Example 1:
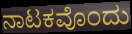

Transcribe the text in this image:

ನಾಟಕವೊಂದು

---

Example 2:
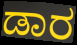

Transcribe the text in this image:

ಡಾರ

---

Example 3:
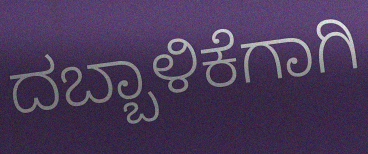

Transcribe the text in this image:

ದಬ್ಬಾಳಿಕೆಗಾಗಿ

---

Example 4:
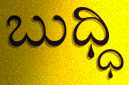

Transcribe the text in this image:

ಬುಧ್ಧಿ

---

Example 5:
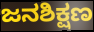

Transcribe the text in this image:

ಜನಶಿಕ್ಷಣ